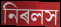
নিৰলস